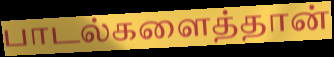
பாடல்களைத்தான்